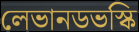
লেভানডভস্কি